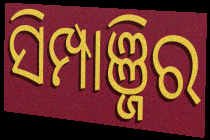
ସିମ୍ପାଞ୍ଜିର